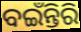
ବଇଁନ୍ତିରି